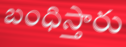
బంధిస్తారు